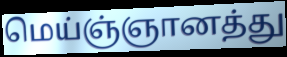
மெய்ஞ்ஞானத்து